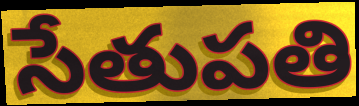
సేతుపతి